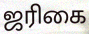
ஜரிகை